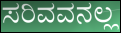
ಸರಿವವನಲ್ಲ